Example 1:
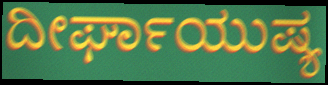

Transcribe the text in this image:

ದೀರ್ಘಾಯುಷ್ಯ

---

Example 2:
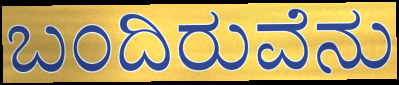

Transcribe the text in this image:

ಬಂದಿರುವೆನು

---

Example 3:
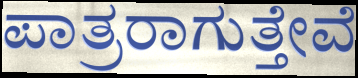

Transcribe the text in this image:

ಪಾತ್ರರಾಗುತ್ತೇವೆ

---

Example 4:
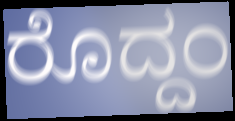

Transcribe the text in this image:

ರೊದ್ದಂ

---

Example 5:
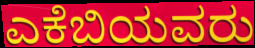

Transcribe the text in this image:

ಎಕೆಬಿಯವರು